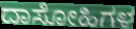
ದಾಸೋಹಿಗಳ